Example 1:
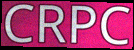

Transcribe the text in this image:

CRPC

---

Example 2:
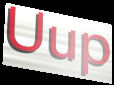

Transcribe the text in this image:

Uup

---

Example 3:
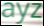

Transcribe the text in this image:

ayz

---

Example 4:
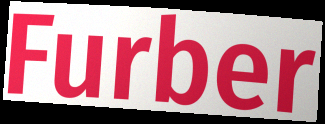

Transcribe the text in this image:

Furber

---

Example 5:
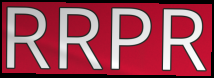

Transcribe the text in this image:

RRPR